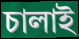
চালাই